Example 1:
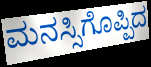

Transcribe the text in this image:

ಮನಸ್ಸಿಗೊಪ್ಪಿದ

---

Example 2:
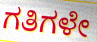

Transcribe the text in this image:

ಗತಿಗಳೇ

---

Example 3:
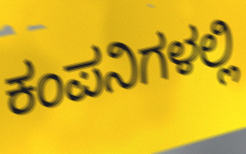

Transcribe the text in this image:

ಕಂಪನಿಗಳಲ್ಲಿ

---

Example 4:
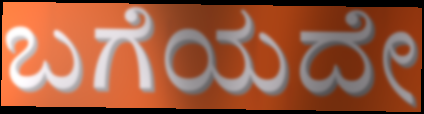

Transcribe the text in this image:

ಬಗೆಯದೇ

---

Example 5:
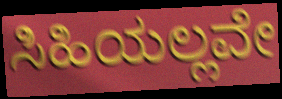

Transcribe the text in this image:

ಸಿಹಿಯಲ್ಲವೇ